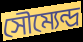
সৌম্যেন্দ্র